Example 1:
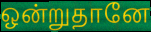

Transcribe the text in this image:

ஒன்றுதானே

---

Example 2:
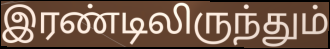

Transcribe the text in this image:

இரண்டிலிருந்தும்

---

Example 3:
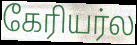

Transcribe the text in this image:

கேரியர்ல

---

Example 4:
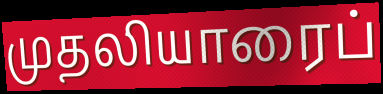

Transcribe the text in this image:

முதலியாரைப்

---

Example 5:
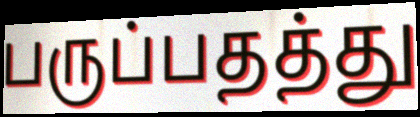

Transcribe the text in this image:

பருப்பதத்து